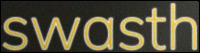
swasth